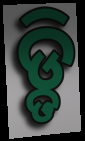
ଡ଼୍ଡି